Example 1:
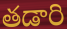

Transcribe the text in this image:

తడారి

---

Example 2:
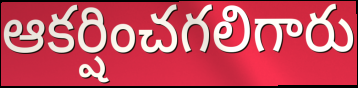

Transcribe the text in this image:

ఆకర్షించగలిగారు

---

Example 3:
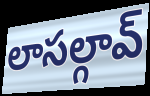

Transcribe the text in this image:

లాసల్గావ్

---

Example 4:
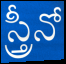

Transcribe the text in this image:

స్త్రీనో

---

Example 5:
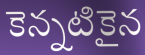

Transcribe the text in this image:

కెన్నటికైన